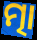
ତ୍ମା